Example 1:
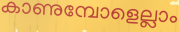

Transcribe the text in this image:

കാണുമ്പോളെല്ലാം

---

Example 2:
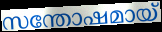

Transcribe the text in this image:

സന്തോഷമായ്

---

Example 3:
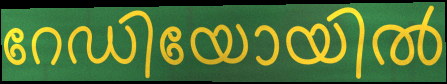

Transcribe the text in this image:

റേഡിയോയിൽ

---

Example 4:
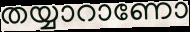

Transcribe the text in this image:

തയ്യാറാണോ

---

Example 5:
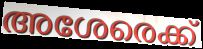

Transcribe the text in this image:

അശേരെക്ക്